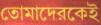
তোমাদেরকেই